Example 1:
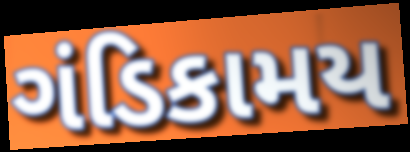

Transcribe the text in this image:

ગંડિકામય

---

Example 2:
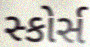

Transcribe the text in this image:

સ્કોર્સ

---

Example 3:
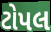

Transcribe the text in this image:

ટોપલ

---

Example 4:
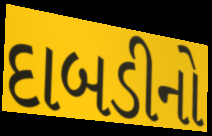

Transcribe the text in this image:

દાબડીનો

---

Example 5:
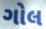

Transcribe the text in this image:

ગોલ